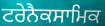
ਟਰੇਨੈਕਸਾਮਿਕ